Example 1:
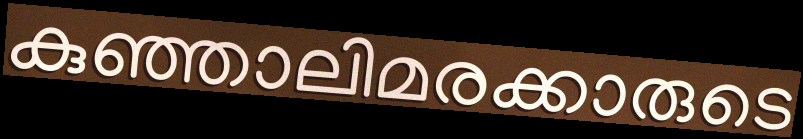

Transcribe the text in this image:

കുഞ്ഞാലിമരക്കാരുടെ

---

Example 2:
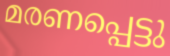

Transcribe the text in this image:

മരണപ്പെട്ടു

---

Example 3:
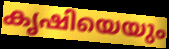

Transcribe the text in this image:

കൃഷിയെയും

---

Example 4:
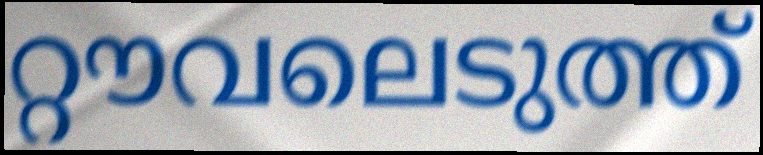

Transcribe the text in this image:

റ്റൗവലെടുത്ത്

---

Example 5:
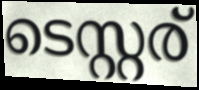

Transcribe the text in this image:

ടെസ്റ്റര്